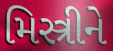
મિસ્ત્રીને